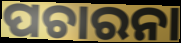
ପଚାରନା